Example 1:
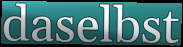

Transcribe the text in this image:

daselbst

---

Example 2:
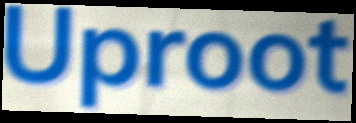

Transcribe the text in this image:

Uproot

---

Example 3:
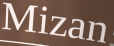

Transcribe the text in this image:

Mizan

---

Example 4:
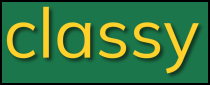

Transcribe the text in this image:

classy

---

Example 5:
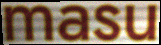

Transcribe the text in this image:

masu